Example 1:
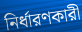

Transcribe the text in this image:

নির্ধারণকারী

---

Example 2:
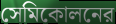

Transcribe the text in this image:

সেমিকোলনের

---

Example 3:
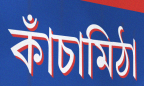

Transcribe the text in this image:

কাঁচামিঠা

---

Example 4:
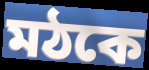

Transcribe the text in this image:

মঠকে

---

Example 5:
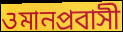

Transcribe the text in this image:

ওমানপ্রবাসী